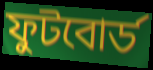
ফুটবোর্ড